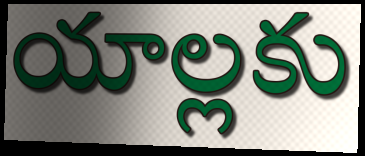
యాల్లకు